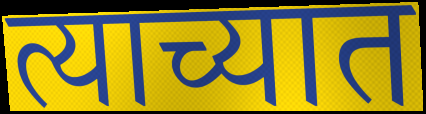
त्याच्यात